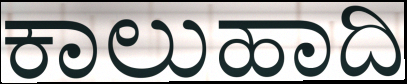
ಕಾಲುಹಾದಿ